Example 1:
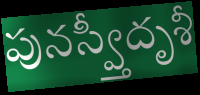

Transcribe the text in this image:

పునస్వ్తీదృశీ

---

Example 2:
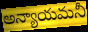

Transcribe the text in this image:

అన్యాయమనీ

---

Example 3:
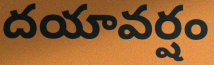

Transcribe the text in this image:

దయావర్షం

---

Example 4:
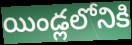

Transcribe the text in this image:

యిండ్లలోనికి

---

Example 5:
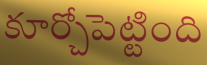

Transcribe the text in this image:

కూర్చోపెట్టింది